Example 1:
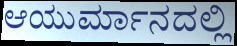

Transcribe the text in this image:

ಆಯುರ್ಮಾನದಲ್ಲಿ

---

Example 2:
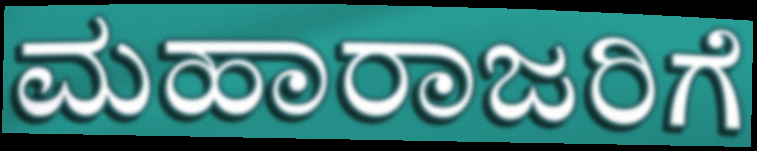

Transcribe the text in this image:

ಮಹಾರಾಜರಿಗೆ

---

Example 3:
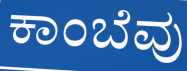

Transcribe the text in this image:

ಕಾಂಬೆವು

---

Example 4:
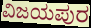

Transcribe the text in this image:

ವಿಜಯಪುರ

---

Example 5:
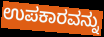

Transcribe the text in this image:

ಉಪಕಾರವನ್ನು